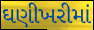
ઘણીખરીમાં